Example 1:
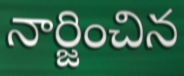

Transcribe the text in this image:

నార్జించిన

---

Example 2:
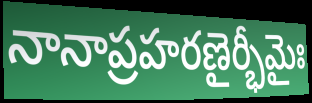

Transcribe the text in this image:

నానాప్రహరణైర్భీమైః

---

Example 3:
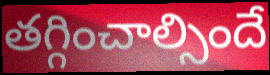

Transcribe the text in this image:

తగ్గించాల్సిందే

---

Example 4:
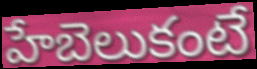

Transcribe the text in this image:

హేబెలుకంటే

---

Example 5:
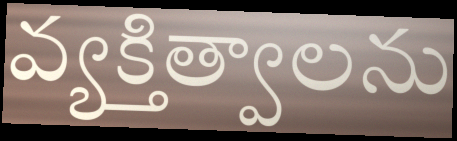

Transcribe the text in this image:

వ్యక్తిత్వాలను